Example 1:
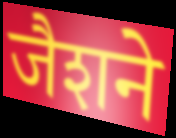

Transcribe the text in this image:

जैशने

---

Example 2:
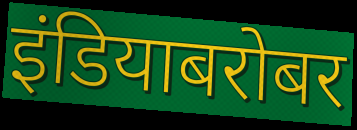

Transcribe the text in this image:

इंडियाबरोबर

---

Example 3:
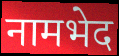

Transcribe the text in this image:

नामभेद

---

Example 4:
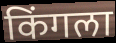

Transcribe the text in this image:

किंगला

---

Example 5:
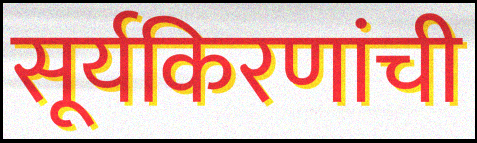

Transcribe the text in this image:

सूर्यकिरणांची